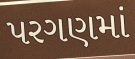
પરગણમાં